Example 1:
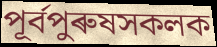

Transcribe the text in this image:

পূৰ্বপুৰুষসকলক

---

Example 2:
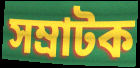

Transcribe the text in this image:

সম্ৰাটক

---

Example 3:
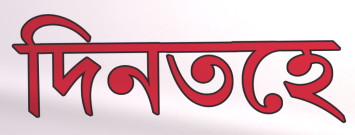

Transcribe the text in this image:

দিনতহে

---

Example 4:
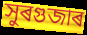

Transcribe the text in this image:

সুৰগুজাৰ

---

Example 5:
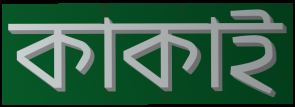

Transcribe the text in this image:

কাকাই